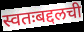
स्वतःबद्दलची